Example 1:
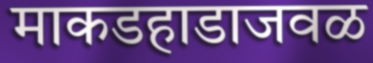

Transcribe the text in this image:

माकडहाडाजवळ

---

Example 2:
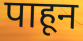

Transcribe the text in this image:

पाहून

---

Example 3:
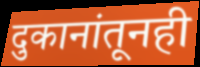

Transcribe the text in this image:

दुकानांतूनही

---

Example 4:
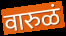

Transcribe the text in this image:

वारुळं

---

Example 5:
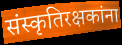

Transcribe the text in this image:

संस्कृतिरक्षकांना